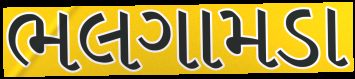
ભલગામડા